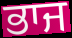
ਭਾਜ